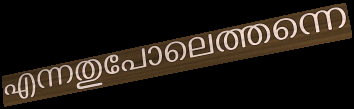
എന്നതുപോലെത്തന്നെ